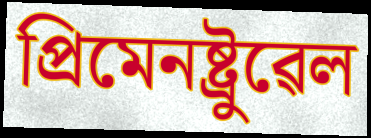
প্ৰিমেনষ্ট্ৰুৱেল